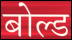
बोल्ड